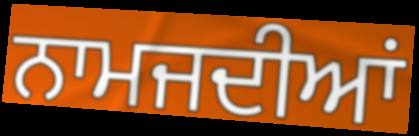
ਨਾਮਜਦੀਆਂ